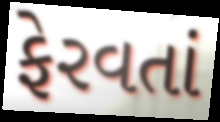
ફેરવતાં